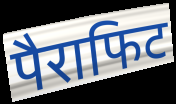
पैराफिट